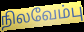
நிலவேம்பு